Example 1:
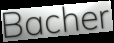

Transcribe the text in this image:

Bacher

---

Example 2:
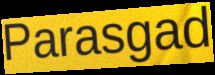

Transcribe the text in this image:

Parasgad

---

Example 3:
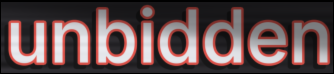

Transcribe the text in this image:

unbidden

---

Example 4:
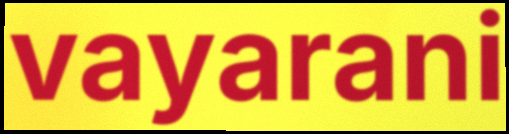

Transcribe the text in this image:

vayarani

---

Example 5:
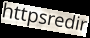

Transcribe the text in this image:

httpsredir